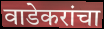
वाडेकरांचा